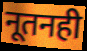
नूतनही